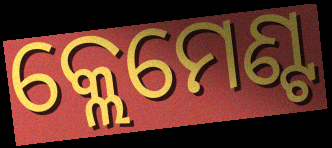
କ୍ଲେମେଣ୍ଟ